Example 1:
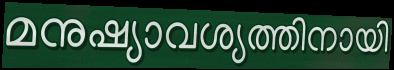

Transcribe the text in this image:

മനുഷ്യാവശ്യത്തിനായി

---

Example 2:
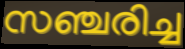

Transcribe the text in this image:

സഞ്ചരിച്ച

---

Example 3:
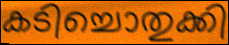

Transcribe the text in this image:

കടിച്ചൊതുക്കി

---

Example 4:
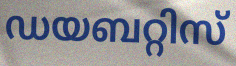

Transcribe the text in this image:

ഡയബറ്റിസ്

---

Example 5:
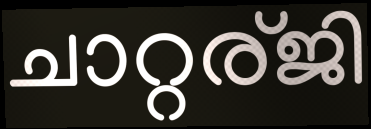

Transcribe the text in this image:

ചാറ്റര്ജി